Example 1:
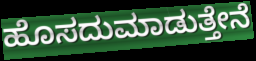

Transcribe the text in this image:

ಹೊಸದುಮಾಡುತ್ತೇನೆ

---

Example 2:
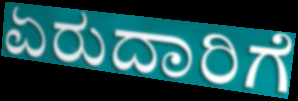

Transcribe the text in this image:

ಏರುದಾರಿಗೆ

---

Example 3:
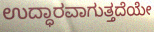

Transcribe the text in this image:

ಉದ್ಧಾರವಾಗುತ್ತದೆಯೇ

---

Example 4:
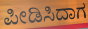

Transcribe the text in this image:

ಪೀಡಿಸಿದಾಗ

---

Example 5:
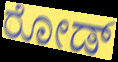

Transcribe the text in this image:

ರೋಡ್